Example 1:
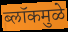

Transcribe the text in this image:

ब्लॉकमुळे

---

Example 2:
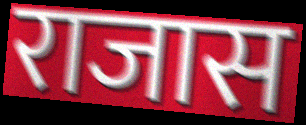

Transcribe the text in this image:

राजास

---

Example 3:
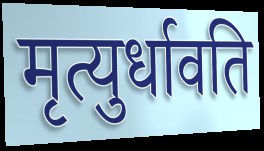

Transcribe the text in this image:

मृत्युर्धावति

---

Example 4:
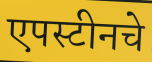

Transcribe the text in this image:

एपस्टीनचे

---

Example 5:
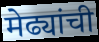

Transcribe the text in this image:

मेढ्यांची